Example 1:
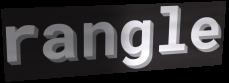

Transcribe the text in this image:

rangle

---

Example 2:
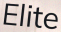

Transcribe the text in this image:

Elite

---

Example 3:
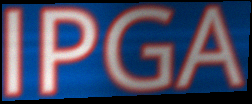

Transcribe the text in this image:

IPGA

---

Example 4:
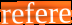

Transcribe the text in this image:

refere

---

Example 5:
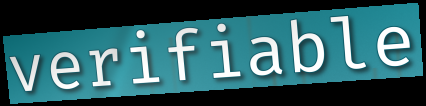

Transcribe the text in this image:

verifiable